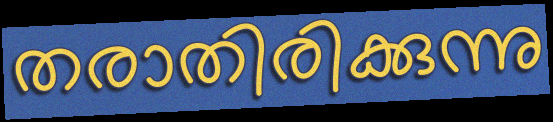
തരാതിരിക്കുന്നു